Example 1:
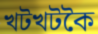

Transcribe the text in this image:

খটখটকৈ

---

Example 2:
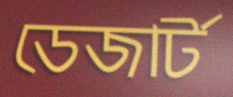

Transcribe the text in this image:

ডেজাৰ্ট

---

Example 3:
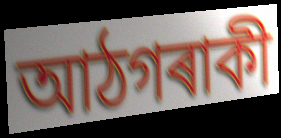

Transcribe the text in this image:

আঠগৰাকী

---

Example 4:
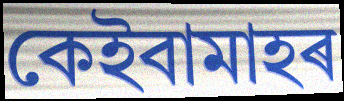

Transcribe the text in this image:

কেইবামাহৰ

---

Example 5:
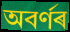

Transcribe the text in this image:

অবৰ্ণৰ